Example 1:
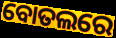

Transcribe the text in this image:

ବୋତଲରେ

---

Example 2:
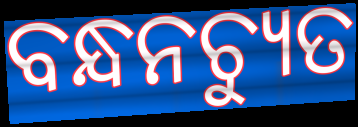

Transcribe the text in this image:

ବନ୍ଧନଚ୍ୟୁତ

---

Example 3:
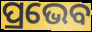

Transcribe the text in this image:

ପ୍ରଭେବ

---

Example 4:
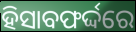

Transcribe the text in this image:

ହିସାବଫର୍ଦ୍ଦରେ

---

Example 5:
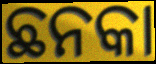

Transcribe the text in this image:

ଛନକା